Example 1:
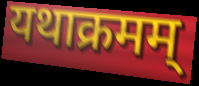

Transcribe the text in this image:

यथाक्रमम्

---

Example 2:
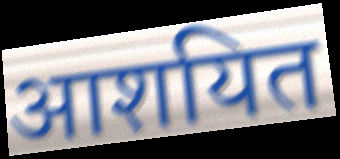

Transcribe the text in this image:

आशयित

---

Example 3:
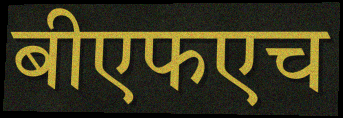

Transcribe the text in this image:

बीएफएच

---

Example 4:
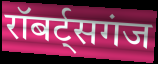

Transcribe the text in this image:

रॉबर्ट्सगंज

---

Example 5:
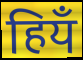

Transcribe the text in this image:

हियँ